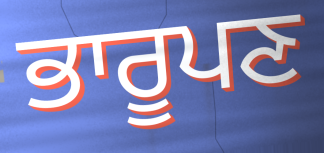
ਭਾਰੂਪਣ